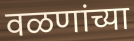
वळणांच्या